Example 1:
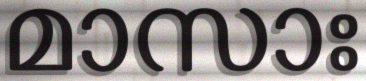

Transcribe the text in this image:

മാസാഃ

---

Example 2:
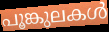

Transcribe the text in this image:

പൂങ്കുലകൾ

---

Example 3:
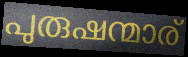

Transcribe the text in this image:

പുരുഷന്മാര്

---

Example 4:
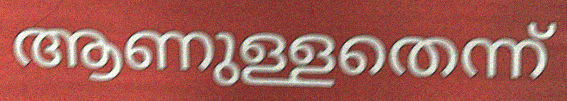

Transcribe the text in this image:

ആണുള്ളതെന്ന്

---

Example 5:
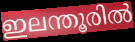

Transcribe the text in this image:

ഇലന്തൂരിൽ